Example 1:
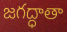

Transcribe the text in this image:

జగద్ధాతా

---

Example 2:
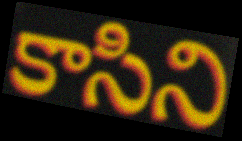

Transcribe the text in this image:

కాసిని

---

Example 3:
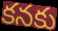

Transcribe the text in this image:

కనకు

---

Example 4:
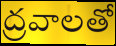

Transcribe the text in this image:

ద్రవాలతో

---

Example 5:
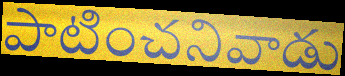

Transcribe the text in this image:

పాటించనివాడు